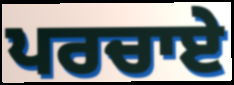
ਪਰਚਾਏ